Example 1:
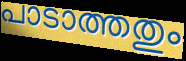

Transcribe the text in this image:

പാടാത്തതും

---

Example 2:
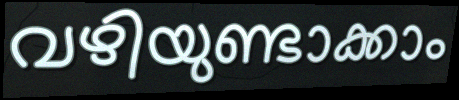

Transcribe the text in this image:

വഴിയുണ്ടാക്കാം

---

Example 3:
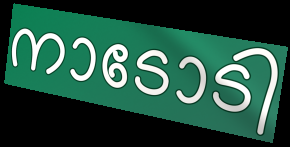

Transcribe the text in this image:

നാടോടി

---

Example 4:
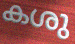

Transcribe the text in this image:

കശു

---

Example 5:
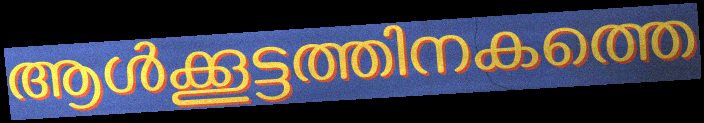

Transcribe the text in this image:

ആൾക്കൂട്ടത്തിനകത്തെ